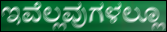
ಇವೆಲ್ಲವುಗಳಲ್ಲೂ